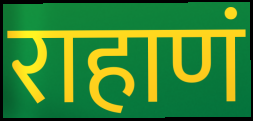
राहाणं